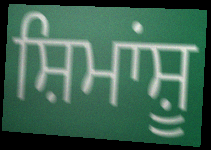
ਸ਼ਿਮਾਂਸ਼ੂ